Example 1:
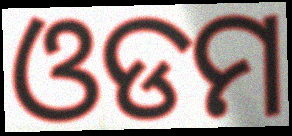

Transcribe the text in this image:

ଓଡମ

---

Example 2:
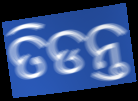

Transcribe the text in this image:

ତିଡନ୍ତ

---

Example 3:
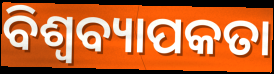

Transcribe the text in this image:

ବିଶ୍ୱବ୍ୟାପକତା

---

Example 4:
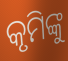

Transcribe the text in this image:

କୃମିଙ୍କୁ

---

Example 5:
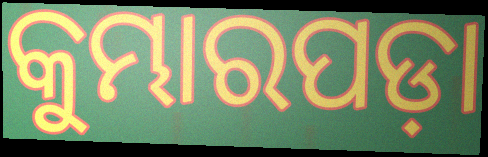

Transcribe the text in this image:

କୁମ୍ଭାରପଡ଼ା